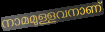
നാമമുള്ളവനാണ്